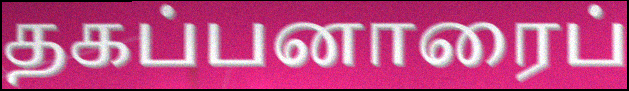
தகப்பனாரைப்